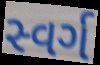
સ્વર્ગ